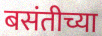
बसंतीच्या